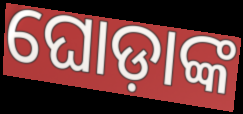
ଘୋଡ଼ାଙ୍କ